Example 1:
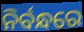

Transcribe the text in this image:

ନିର୍ବନ୍ଧରେ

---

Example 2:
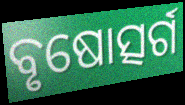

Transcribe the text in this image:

ବୃଷୋତ୍ସର୍ଗ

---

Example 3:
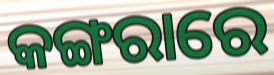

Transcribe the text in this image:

କଙ୍ଗରାରେ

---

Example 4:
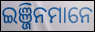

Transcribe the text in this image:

ଇଞ୍ଜିନମାନେ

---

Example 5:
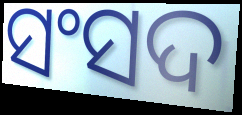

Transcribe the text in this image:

ସଂସଦ